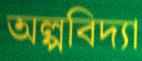
অল্পবিদ্যা